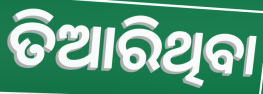
ତିଆରିଥିବା